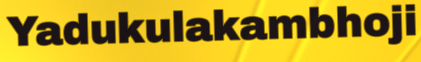
Yadukulakambhoji